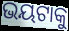
ଭୟଟାକୁ